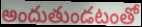
అందుతుండటంతో